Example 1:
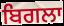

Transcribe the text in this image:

ਬਿਗਲਾ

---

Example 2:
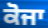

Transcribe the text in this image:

ਕੋਜਾ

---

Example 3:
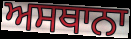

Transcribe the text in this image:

ਅਸਥਾਨਾ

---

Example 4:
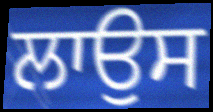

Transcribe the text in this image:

ਲਾਉਸ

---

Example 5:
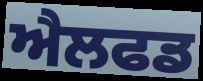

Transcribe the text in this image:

ਐਲਫਡ